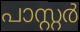
പാസ്റ്റർ